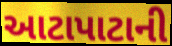
આટાપાટાની